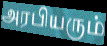
அரபியரும்